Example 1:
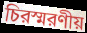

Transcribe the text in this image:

চিরস্মরণীয়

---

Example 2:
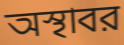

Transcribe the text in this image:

অস্থাবর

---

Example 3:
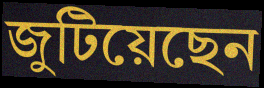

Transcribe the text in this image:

জুটিয়েছেন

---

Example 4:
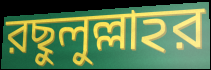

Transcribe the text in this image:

রছুলুল্লাহর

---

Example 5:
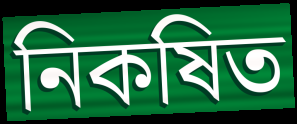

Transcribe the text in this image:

নিকষিত